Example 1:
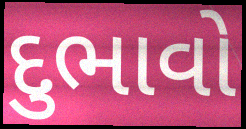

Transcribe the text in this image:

દુભાવો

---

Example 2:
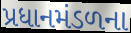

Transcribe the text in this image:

પ્રધાનમંડળના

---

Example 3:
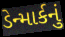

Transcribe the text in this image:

ડેન્માર્કનું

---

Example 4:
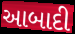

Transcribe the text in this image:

આબાદી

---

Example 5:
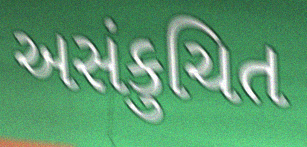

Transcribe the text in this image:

અસંકુચિત